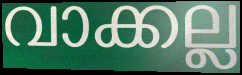
വാക്കല്ല